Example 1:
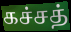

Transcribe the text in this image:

கச்சத்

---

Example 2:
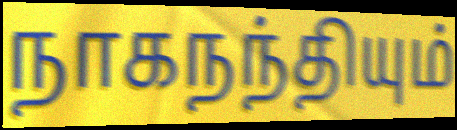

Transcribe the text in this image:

நாகநந்தியும்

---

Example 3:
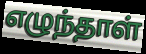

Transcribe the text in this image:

எழுந்தாள்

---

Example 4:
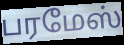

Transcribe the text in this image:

பரமேஸ்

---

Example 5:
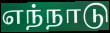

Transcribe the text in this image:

எந்நாடு